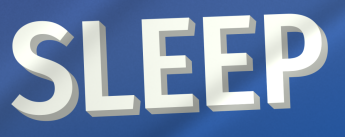
SLEEP